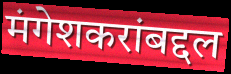
मंगेशकरांबद्दल